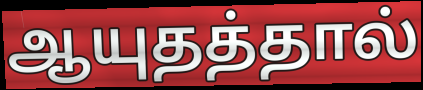
ஆயுதத்தால்